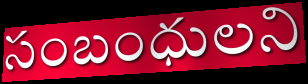
సంబంధులని